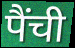
पैंची